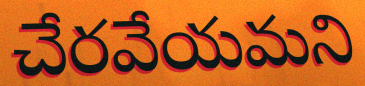
చేరవేయమని